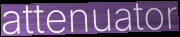
attenuator